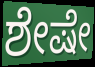
ಶೇಷೇ